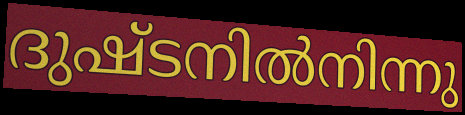
ദുഷ്ടനിൽനിന്നു